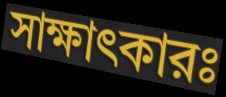
সাক্ষাৎকারঃ